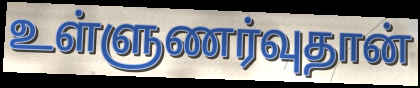
உள்ளுணர்வுதான்